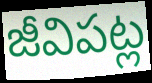
జీవిపట్ల